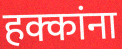
हक्कांना